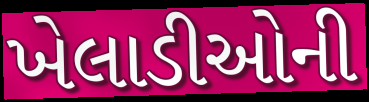
ખેલાડીઓની